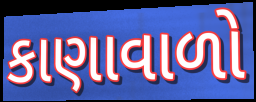
કાણાવાળો